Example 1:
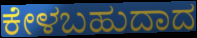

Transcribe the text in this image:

ಕೇಳಬಹುದಾದ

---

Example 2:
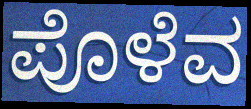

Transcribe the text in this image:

ಪೊಳೆವ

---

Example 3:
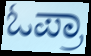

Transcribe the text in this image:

ಓಪ್ರಾ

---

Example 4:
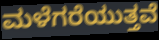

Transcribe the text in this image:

ಮಳೆಗರೆಯುತ್ತವೆ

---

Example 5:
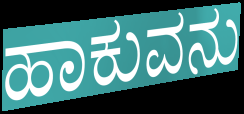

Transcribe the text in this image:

ಹಾಕುವನು